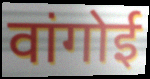
वांगोई